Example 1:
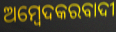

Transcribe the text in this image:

ଅମ୍ବେଦକରବାଦୀ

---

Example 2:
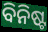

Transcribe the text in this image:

ବିନିଷ୍ଟ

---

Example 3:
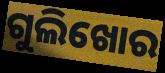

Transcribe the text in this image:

ଗୁଲିଖୋର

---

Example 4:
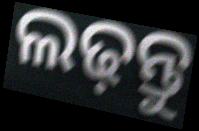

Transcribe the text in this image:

ଲଢ଼ନ୍ତୁ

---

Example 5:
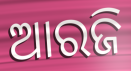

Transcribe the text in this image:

ଆରଜି